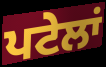
ਪਟੇਲਾਂ